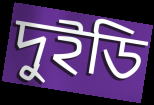
দুইডি